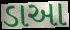
ડાઆ